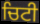
ਚਿਟੀ